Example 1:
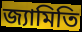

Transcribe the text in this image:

জ্যামিতি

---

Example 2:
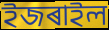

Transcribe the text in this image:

ইজৰাইল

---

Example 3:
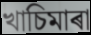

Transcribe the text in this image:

খাচিমাৰা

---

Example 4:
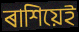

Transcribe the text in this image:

ৰাশিয়েই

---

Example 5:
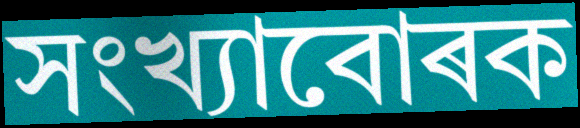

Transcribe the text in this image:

সংখ্যাবোৰক